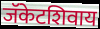
जॅकेटशिवाय